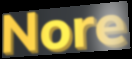
Nore